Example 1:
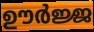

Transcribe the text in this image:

ഊർജ്ജ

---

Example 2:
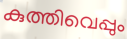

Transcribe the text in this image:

കുത്തിവെപ്പും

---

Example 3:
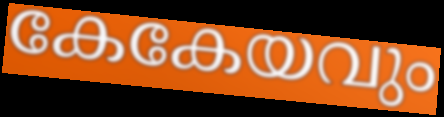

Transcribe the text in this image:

കേകേയവും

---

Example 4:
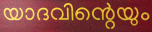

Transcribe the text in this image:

യാദവിന്റെയും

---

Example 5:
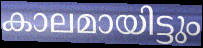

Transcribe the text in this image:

കാലമായിട്ടും